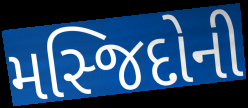
મસ્જિદોની